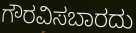
ಗೌರವಿಸಬಾರದು